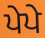
ਪੇਪੇ